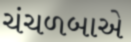
ચંચળબાએ